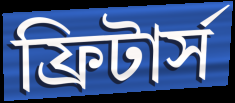
ফ্রিটার্স